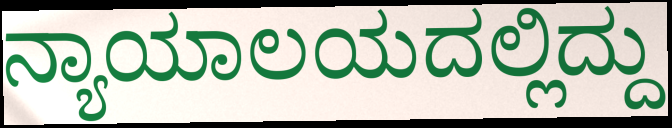
ನ್ಯಾಯಾಲಯದಲ್ಲಿದ್ದು